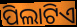
ପିଲାଟିଏ